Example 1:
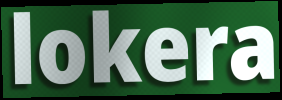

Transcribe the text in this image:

lokera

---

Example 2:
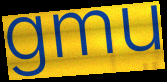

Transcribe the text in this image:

gmu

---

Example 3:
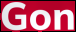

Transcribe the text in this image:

Gon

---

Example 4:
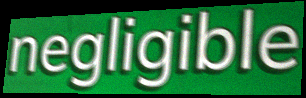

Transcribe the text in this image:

negligible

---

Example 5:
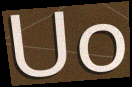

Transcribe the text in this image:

Uo